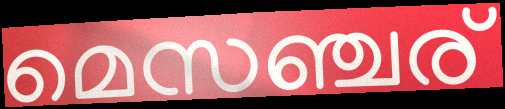
മെസഞ്ചര്